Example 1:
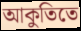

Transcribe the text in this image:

আকুতিতে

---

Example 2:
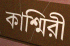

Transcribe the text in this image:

কাশ্মিরী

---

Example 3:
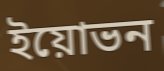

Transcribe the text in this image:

ইয়োভন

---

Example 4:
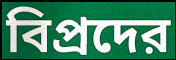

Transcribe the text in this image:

বিপ্রদের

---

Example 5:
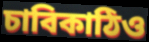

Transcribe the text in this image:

চাবিকাঠিও